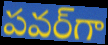
పవర్‌గా